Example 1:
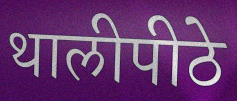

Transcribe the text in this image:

थालीपीठे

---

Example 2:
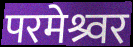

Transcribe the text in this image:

परमेश्र्वर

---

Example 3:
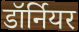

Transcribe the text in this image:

डॉर्नियर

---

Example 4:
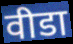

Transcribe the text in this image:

वीडा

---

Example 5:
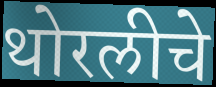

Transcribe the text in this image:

थोरलीचे